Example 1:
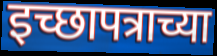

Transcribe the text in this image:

इच्छापत्राच्या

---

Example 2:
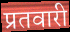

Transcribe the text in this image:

प्रतवारी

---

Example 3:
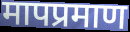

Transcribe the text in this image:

मापप्रमाण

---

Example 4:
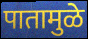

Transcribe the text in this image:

पातामुळे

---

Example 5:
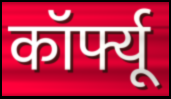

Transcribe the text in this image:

कॉर्फ्यू